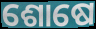
ଶୋଷେ